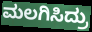
ಮಲಗಿಸಿದ್ರು